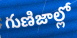
గుణిజాల్లో